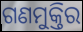
ଗଣମୁକ୍ତିର